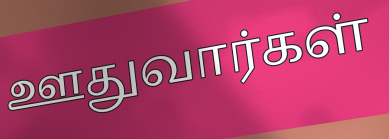
ஊதுவார்கள்